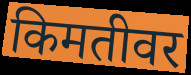
किमतीवर